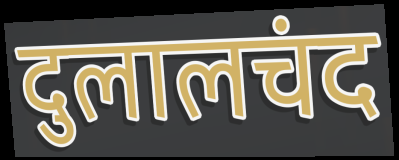
दुलालचंद